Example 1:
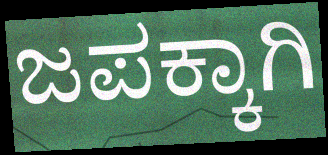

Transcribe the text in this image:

ಜಪಕ್ಕಾಗಿ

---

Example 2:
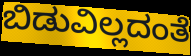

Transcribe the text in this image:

ಬಿಡುವಿಲ್ಲದಂತೆ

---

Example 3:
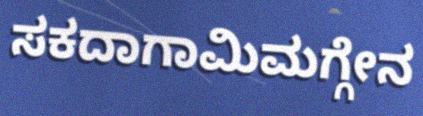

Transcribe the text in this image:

ಸಕದಾಗಾಮಿಮಗ್ಗೇನ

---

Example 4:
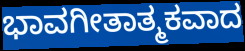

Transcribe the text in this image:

ಭಾವಗೀತಾತ್ಮಕವಾದ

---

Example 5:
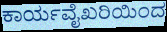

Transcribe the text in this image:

ಕಾರ್ಯವೈಖರಿಯಿಂದ